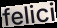
felici